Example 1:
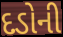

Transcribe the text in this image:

દડોની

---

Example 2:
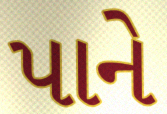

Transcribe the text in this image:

પાને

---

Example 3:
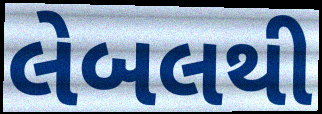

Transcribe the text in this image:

લેબલથી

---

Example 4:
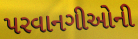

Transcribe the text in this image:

પરવાનગીઓની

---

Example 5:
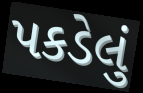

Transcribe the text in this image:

પકડેલું